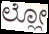
ಲ್ಲೋ